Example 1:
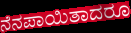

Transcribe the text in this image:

ನೆನಪಾಯಿತಾದರೂ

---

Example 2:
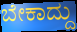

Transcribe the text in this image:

ಬೇಕಾದ್ದು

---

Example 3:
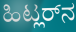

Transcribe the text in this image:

ಹಿಟ್ಲರ್‌ನ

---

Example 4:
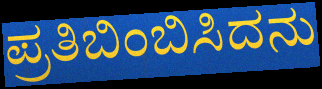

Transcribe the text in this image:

ಪ್ರತಿಬಿಂಬಿಸಿದನು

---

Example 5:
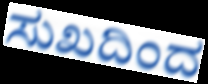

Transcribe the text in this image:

ಸುಖದಿಂದ